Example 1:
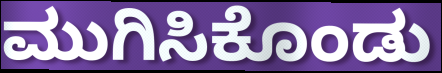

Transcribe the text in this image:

ಮುಗಿಸಿಕೊಂಡು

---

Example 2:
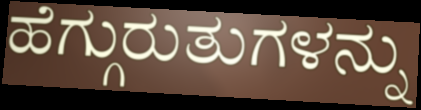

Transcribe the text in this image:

ಹೆಗ್ಗುರುತುಗಳನ್ನು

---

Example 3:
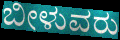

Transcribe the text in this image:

ಬೀಳುವರು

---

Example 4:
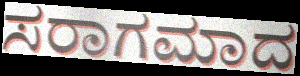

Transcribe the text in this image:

ಸರಾಗಮಾದ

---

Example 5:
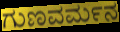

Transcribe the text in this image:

ಗುಣವರ್ಮನ